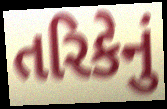
તરિકેનું